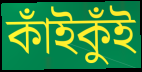
কাঁইকুঁই